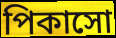
পিকাসো